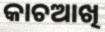
କାଚଆଖି